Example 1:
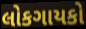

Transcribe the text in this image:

લોકગાયકો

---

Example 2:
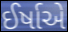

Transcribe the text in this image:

ઈર્ષાએ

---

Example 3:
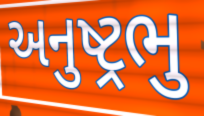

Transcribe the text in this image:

અનુષ્ટ્રભુ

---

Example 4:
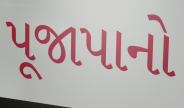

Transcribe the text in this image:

પૂજાપાનો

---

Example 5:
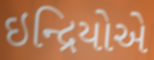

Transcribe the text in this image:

ઇન્દ્રિયોએ